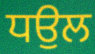
ਧਉਲ